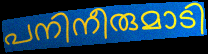
പനിനീരുമാടി